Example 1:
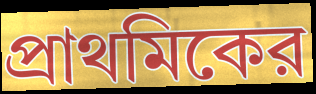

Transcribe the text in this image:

প্রাথমিকের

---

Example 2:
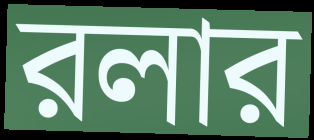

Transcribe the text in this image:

রলার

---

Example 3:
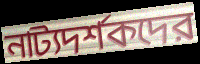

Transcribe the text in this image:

নাট্যদর্শকদের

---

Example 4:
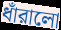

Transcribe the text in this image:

ধাঁরালো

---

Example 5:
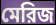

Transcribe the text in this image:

মেরিজ